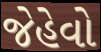
જેહેવો